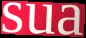
sua